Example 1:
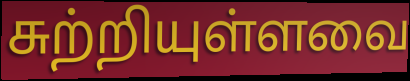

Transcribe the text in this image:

சுற்றியுள்ளவை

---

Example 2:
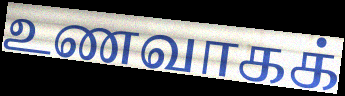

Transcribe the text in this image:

உணவாகக்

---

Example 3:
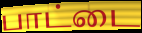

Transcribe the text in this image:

பாட்டை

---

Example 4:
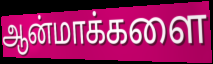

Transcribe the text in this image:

ஆன்மாக்களை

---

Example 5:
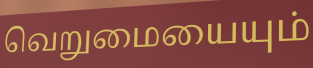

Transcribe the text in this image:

வெறுமையையும்